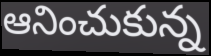
ఆనించుకున్న